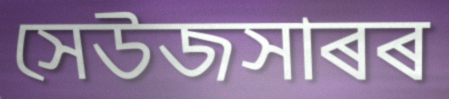
সেউজসাৰৰ